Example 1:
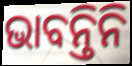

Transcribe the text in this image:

ଭାବନ୍ତିନି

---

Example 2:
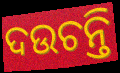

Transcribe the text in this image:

ଦଉଚନ୍ତି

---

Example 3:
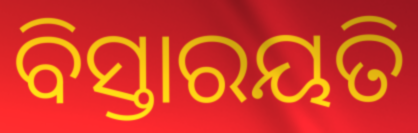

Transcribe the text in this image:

ବିସ୍ତାରୟତି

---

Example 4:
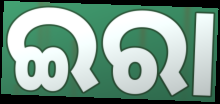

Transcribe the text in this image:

ଇରା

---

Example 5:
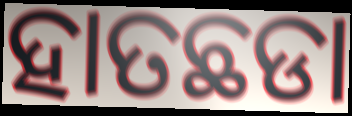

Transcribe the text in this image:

ହାତଛଡା